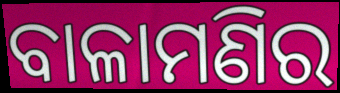
ବାଳାମଣିର